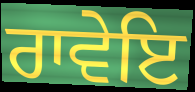
ਰਾਵੇਇ